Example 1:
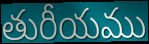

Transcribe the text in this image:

తురీయము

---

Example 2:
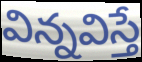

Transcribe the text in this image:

విన్నవిస్తే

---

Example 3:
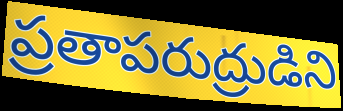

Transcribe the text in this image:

ప్రతాపరుద్రుడిని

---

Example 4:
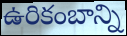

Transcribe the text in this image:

ఉరికంబాన్ని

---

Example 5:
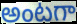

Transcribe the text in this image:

అంటగా